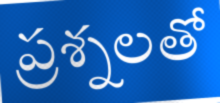
ప్రశ్నలతో